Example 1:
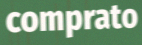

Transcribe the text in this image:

comprato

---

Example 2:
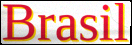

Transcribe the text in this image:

Brasil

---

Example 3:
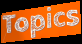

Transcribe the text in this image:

Topics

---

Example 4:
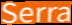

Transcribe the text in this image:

Serra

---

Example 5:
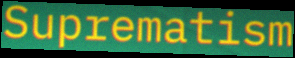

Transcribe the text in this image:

Suprematism